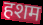
हशम